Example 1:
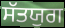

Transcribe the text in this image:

ਸੱਤਯੁਗ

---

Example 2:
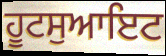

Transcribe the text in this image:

ਹੂਟਸੁਆਇਟ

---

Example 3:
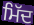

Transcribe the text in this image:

ਮਿੱਦ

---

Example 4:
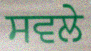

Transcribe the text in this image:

ਸਵਲੇ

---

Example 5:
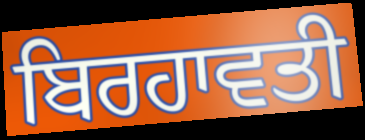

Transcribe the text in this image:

ਬਿਰਹਾਵਤੀ